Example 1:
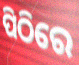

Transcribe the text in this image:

ପିଠିରେ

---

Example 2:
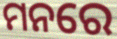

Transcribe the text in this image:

ମନରେ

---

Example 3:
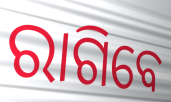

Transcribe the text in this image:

ରାଗିବେ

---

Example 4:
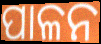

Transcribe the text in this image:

ପାଳନ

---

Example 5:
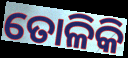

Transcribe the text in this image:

ତୋଳିକି